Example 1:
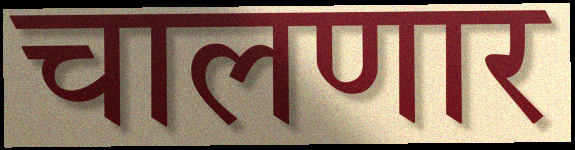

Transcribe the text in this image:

चालणार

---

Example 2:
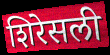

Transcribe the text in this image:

शिरेसली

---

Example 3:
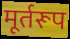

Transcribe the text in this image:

मूर्तरूप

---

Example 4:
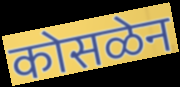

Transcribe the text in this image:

कोसळेन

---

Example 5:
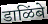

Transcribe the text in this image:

डाळिंबे